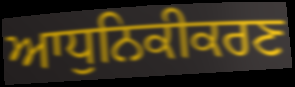
ਆਧੁਨਿਕੀਕਰਣ